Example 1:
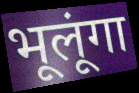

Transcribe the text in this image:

भूलूंगा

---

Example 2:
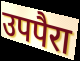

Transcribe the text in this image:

उपपैरा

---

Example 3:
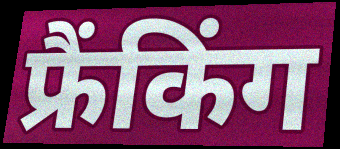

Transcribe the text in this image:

फ्रैंकिंग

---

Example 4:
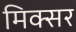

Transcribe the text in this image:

मिक्सर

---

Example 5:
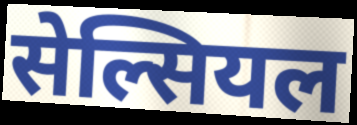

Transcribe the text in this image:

सेल्सियल